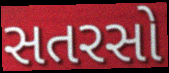
સતરસો